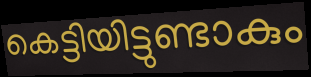
കെട്ടിയിട്ടുണ്ടാകും